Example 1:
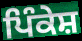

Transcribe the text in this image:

ਪਿੰਕੇਸ਼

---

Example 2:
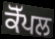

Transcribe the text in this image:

ਕੋੱਪਲ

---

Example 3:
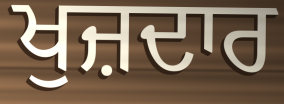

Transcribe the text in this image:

ਖੁਜ਼ਦਾਰ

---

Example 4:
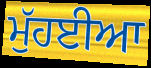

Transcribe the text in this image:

ਮੁੱਹਈਆ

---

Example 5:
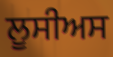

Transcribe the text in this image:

ਲੂਸੀਅਸ